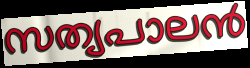
സത്യപാലൻ